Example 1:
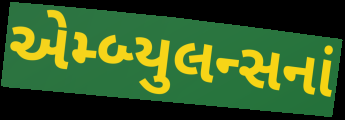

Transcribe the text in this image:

એમ્બ્યુલન્સનાં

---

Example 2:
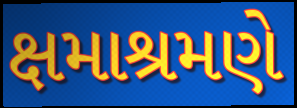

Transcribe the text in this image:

ક્ષમાશ્રમણે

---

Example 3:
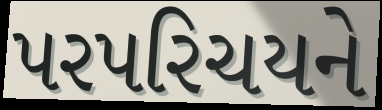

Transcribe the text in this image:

પરપરિચયને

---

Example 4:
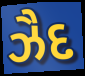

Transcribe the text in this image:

ઝૈદ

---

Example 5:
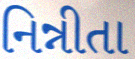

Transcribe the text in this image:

નિન્નીતા